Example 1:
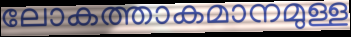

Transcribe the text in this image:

ലോകത്താകമാനമുള്ള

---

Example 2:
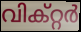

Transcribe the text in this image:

വിക്റ്റർ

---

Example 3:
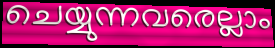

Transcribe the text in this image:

ചെയ്യുന്നവരെല്ലാം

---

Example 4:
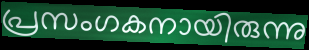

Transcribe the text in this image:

പ്രസംഗകനായിരുന്നു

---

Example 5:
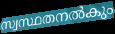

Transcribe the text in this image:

സ്വസ്ഥതനൽകും